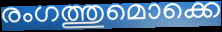
രംഗത്തുമൊക്കെ